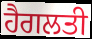
ਹੈਗਲਤੀ